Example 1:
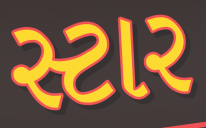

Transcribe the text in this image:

સ્ટાર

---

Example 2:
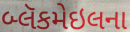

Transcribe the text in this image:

બ્લૅકમેઇલના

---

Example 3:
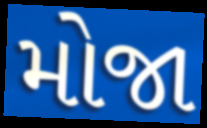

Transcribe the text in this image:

મોજા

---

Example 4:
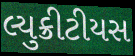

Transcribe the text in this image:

લ્યુક્રીટીયસ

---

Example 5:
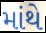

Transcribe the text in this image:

માંથે